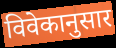
विवेकानुसार